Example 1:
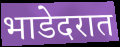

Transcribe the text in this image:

भाडेदरात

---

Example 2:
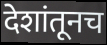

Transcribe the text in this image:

देशांतूनच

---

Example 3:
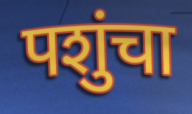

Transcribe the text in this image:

पशुंचा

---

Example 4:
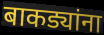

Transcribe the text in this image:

बाकड्यांना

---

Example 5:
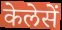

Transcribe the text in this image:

केलेसें